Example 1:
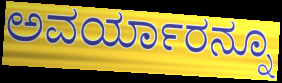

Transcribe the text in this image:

ಅವರ್ಯಾರನ್ನೂ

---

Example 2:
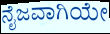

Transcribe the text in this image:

ನೈಜವಾಗಿಯೇ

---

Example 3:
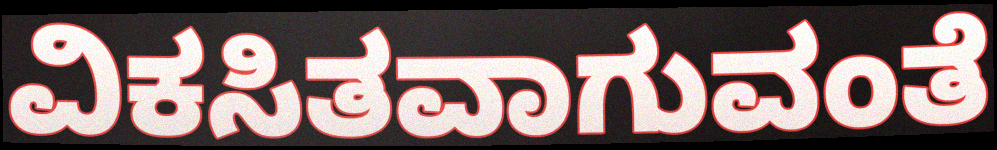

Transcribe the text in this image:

ವಿಕಸಿತವಾಗುವಂತೆ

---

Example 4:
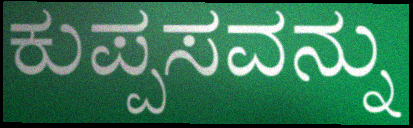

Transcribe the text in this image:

ಕುಪ್ಪಸವನ್ನು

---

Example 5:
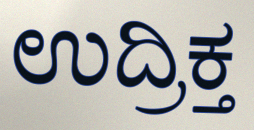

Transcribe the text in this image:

ಉದ್ರಿಕ್ತ